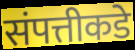
संपत्तीकडे